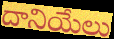
దానియేలు